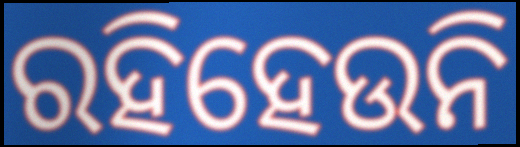
ରହିହେଉନି